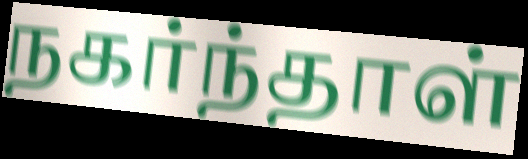
நகர்ந்தாள்